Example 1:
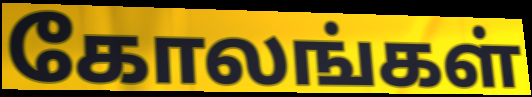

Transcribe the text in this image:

கோலங்கள்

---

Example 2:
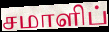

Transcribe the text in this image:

சமாளிப்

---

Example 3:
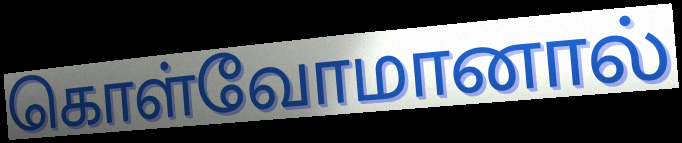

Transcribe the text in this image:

கொள்வோமானால்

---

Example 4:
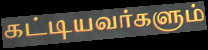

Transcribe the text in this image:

கட்டியவர்களும்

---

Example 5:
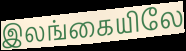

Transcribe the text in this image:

இலங்கையிலே